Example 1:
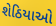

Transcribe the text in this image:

શેઠિયાઓ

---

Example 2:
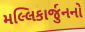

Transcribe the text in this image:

મલ્લિકાર્જુનનો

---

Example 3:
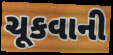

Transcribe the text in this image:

ચૂકવાની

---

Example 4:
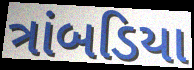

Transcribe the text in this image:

ત્રાંબડિયા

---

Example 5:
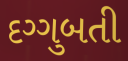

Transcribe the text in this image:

દગ્ગુબતી